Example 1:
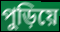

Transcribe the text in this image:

পুড়িয়ে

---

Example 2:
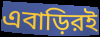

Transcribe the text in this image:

এবাড়িরই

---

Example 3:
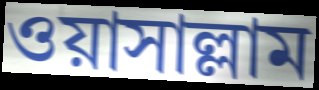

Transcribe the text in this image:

ওয়াসাল্লাম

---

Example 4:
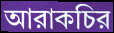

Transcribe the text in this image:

আরাকচির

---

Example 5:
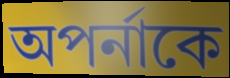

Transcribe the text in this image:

অপর্নাকে